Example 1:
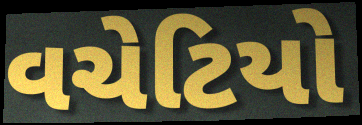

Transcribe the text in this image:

વચેટિયો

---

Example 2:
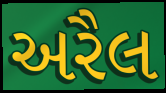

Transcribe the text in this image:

અરૈલ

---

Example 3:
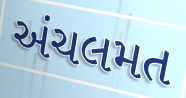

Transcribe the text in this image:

અંચલમત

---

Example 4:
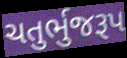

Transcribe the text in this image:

ચતુર્ભુજરૂપ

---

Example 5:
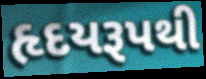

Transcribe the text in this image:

હૃદયરૂપથી